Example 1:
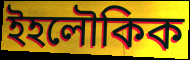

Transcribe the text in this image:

ইহলৌকিক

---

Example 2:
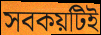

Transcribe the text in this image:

সবকয়টিই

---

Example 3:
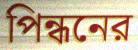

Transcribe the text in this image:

পিন্ধনের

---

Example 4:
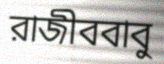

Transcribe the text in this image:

রাজীববাবু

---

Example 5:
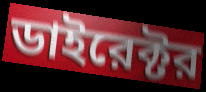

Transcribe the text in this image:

ডাইরেক্টর